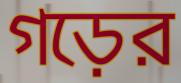
গড়ের